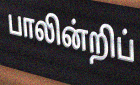
பாலின்றிப்